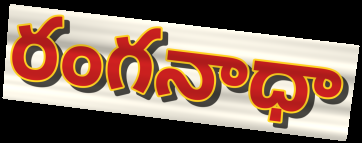
రంగనాధా